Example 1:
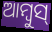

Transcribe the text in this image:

ଆମ୍ବୁସ୍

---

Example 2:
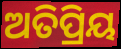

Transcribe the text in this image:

ଅତିପ୍ରିୟ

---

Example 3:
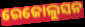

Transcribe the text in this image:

ରେଜୋଲୁସନ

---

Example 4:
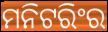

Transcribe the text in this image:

ମନିଟରିଂର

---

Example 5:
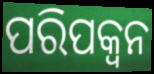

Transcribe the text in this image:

ପରିପକ୍ବନ